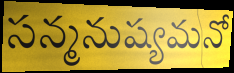
సన్మనుష్యమనో